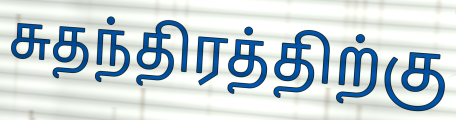
சுதந்திரத்திற்கு